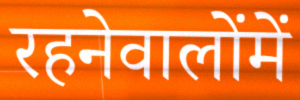
रहनेवालोंमें